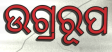
ଉଗ୍ରରୂପ